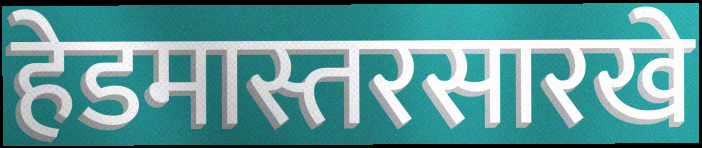
हेडमास्तरसारखे